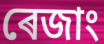
ৰেজাং